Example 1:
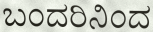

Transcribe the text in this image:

ಬಂದರಿನಿಂದ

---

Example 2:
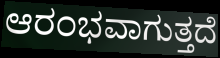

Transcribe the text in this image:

ಆರಂಭವಾಗುತ್ತದೆ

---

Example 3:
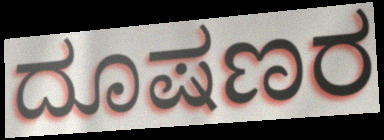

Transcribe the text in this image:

ದೂಷಣರ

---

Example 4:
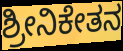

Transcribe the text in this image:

ಶ್ರೀನಿಕೇತನ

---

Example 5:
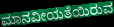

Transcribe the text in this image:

ಮಾನವೀಯತೆಯಿರುವ